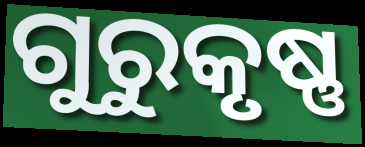
ଗୁରୁକୃଷ୍ଣ